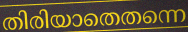
തിരിയാതെതന്നെ